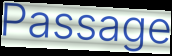
Passage